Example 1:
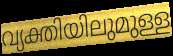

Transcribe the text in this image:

വ്യക്തിയിലുമുള്ള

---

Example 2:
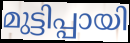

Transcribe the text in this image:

മുട്ടിപ്പായി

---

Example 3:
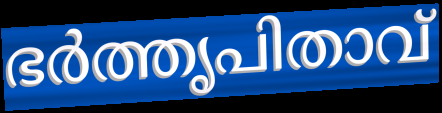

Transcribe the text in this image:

ഭർത്തൃപിതാവ്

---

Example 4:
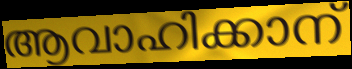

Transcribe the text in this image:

ആവാഹിക്കാന്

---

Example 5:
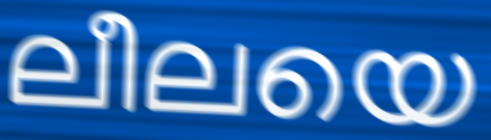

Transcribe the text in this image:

ലീലയെ